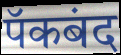
पॅकबंद